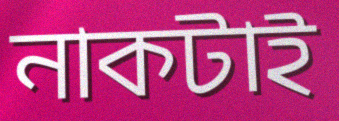
নাকটাই